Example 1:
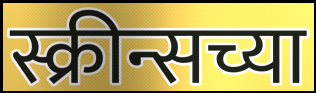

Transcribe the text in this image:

स्क्रीन्सच्या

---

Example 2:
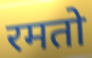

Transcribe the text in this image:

रमतो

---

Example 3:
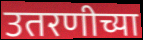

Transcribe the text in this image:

उतरणीच्या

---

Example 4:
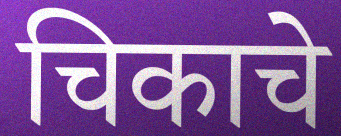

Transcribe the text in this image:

चिकाचे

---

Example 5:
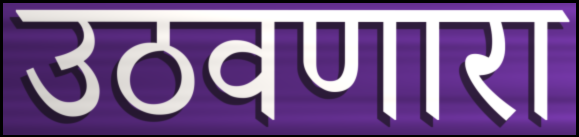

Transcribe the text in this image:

उठवणारा